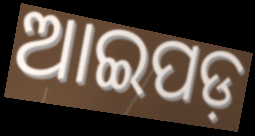
ଆଇପଡ଼